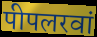
पीपलरवां